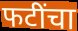
फटींचा